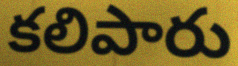
కలిపారు